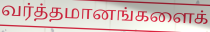
வர்த்தமானங்களைக்